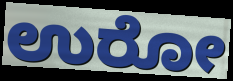
ಉರೋ